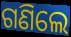
ଗଣିଲେ